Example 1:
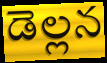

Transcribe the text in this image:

డెల్లన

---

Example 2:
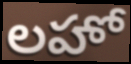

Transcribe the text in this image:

లహో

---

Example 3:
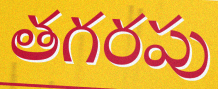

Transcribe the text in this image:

తగరపు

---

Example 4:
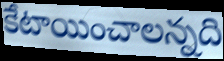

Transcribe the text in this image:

కేటాయించాలన్నది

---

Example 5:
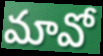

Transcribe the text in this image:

మావో